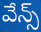
వేన్స్